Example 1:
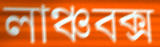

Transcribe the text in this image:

লাঞ্চবক্স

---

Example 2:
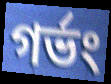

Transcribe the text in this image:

গর্ভং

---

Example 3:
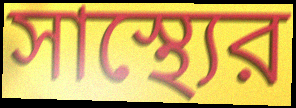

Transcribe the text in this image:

সাস্থ্যের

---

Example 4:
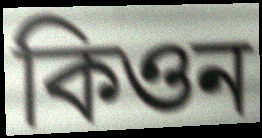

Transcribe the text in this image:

কিওন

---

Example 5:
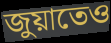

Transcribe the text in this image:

জুয়াতেও